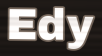
Edy